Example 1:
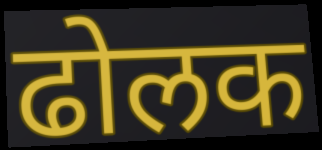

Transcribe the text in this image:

ढोलक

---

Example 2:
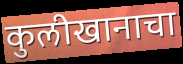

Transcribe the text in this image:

कुलीखानाचा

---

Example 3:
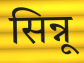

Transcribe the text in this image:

सिन्नू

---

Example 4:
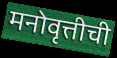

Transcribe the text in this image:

मनोवृत्तीची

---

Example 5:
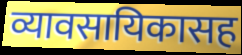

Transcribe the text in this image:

व्यावसायिकासह